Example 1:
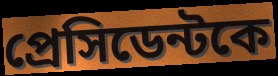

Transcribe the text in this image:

প্রেসিডেন্টকে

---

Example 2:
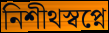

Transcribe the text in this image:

নিশীথস্বপ্নে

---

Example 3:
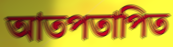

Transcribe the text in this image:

আতপতাপিত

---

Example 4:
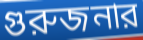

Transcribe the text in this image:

গুরুজনার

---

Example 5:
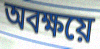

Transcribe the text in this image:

অবক্ষয়ে